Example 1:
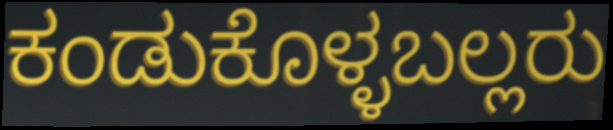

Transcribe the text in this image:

ಕಂಡುಕೊಳ್ಳಬಲ್ಲರು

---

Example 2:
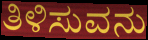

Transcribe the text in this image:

ತಿಳಿಸುವನು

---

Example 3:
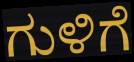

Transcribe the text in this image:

ಗುಳಿಗೆ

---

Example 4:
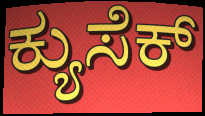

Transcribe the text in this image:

ಕ್ಯುಸೆಕ್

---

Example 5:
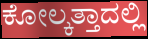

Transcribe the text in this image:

ಕೋಲ್ಕತ್ತಾದಲ್ಲಿ